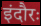
इंदौरः